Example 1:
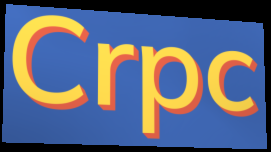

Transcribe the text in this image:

Crpc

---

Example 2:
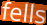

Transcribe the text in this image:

fells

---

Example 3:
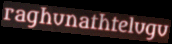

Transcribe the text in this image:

raghunathtelugu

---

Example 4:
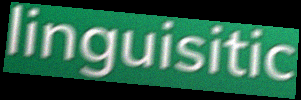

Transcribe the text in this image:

linguisitic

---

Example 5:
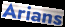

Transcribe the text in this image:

Arians